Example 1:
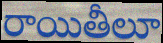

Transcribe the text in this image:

రాయితీలూ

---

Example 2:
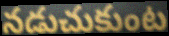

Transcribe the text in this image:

నడుచుకుంట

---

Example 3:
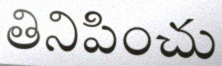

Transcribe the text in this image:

తినిపించు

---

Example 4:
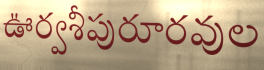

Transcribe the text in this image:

ఊర్వశీపురూరవుల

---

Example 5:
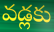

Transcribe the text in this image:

వడ్లకు